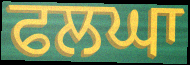
ਫਲਘਾ